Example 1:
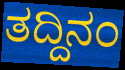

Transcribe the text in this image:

ತದ್ದಿನಂ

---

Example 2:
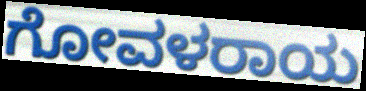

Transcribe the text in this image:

ಗೋವಳರಾಯ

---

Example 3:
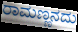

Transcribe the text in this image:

ರಾಮಣ್ಣನದು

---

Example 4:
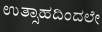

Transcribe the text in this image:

ಉತ್ಸಾಹದಿಂದಲೇ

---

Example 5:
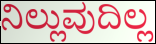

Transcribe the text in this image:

ನಿಲ್ಲುವುದಿಲ್ಲ